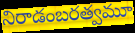
నిరాడంబరత్వమూ